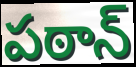
పఠాన్